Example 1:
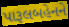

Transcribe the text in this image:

પારૂલબહેનને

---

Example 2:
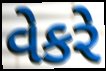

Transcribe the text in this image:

વેકરે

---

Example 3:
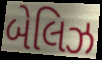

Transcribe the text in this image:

બેલિઝ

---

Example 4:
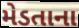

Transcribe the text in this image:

મેડતાના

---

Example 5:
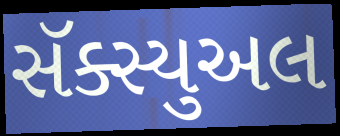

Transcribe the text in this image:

સૅક્સ્યુઅલ